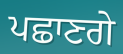
ਪਛਾਣਗੇ